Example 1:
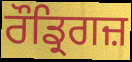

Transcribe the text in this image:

ਰੌਡ੍ਰਿਗਜ਼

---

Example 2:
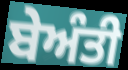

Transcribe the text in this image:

ਬੇਅੰਤੀ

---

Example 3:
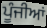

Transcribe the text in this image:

ਪੂੰਜੀਆਂ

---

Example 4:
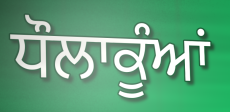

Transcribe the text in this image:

ਧੌਲਾਕੂੰਆਂ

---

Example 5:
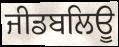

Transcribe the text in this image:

ਜੀਡਬਲਿਊ